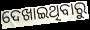
ଦେଖାଇଥିବାରୁ